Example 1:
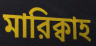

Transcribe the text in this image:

মারিক্বাহ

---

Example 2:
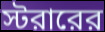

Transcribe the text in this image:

স্টরারের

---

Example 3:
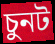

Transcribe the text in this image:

চুনট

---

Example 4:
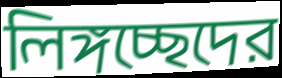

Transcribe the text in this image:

লিঙ্গচ্ছেদের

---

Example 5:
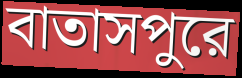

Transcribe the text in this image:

বাতাসপুরে